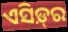
ଏସିଡ଼୍‌ର